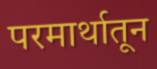
परमार्थातून